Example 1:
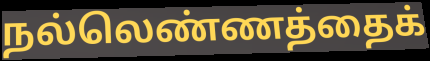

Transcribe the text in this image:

நல்லெண்ணத்தைக்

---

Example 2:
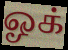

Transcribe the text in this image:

ஓக்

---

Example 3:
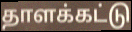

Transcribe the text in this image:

தாளக்கட்டு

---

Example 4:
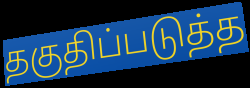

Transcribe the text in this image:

தகுதிப்படுத்த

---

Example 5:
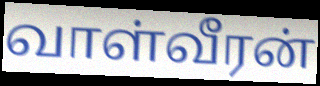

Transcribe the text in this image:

வாள்வீரன்